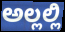
ಅಲ್ಲಲ್ಲಿ